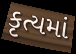
કૃત્યમાં